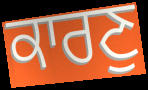
ਕਾਰਣੁ